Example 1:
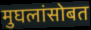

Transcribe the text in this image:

मुघलांसोबत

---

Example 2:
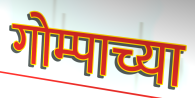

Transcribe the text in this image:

गोम्पाच्या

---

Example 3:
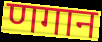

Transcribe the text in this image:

णगान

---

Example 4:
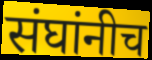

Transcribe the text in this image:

संघांनीच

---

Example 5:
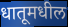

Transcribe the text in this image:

धातूमधील